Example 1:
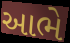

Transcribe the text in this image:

આભે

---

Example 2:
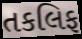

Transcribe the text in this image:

તકલિફ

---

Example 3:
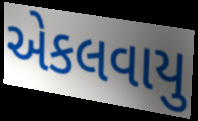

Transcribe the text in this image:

એકલવાયુ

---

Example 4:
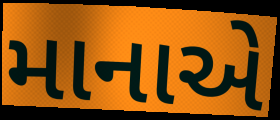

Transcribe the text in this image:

માનાએ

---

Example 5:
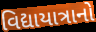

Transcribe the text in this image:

વિદ્યાયાત્રાનો